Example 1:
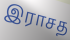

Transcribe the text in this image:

இராசத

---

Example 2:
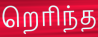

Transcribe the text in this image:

றெரிந்த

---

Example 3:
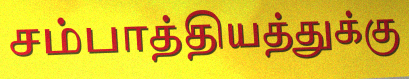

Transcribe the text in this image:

சம்பாத்தியத்துக்கு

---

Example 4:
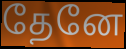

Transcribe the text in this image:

தேனே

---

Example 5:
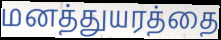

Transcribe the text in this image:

மனத்துயரத்தை